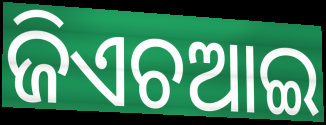
ଜିଏଚଆଇ